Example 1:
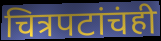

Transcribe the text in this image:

चित्रपटांचंही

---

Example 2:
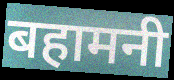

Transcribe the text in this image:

बहामनी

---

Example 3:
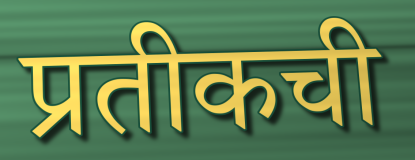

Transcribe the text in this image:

प्रतीकची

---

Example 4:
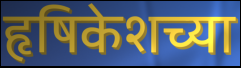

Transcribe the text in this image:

हृषिकेशच्या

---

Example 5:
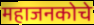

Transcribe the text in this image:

महाजनकोचे